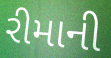
રીમાની